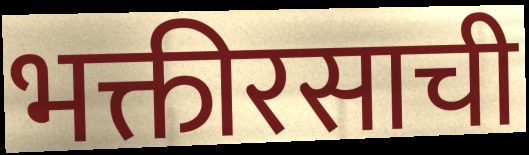
भक्तीरसाची